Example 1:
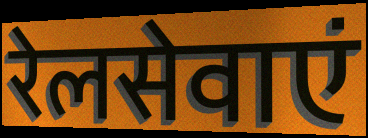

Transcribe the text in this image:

रेलसेवाएं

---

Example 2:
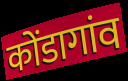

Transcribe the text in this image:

कोंडागांव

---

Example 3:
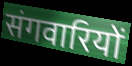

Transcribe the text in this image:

संगवारियों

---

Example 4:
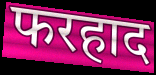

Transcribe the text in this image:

फरहाद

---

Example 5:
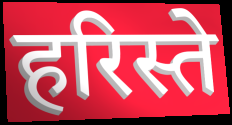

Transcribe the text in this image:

हरिस्ते